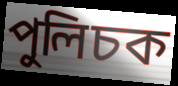
পুলিচক